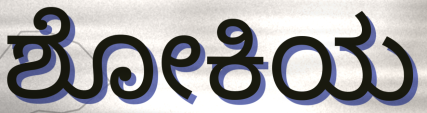
ಶೋಕಿಯ